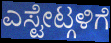
ಎಸ್ಟೇಟ್ಗಳಿಗೆ